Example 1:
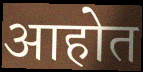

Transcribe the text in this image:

आहोत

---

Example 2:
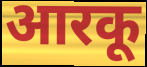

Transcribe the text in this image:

आरकू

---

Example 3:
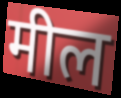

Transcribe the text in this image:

मील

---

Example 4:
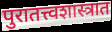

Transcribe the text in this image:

पुरातत्त्वशास्त्रात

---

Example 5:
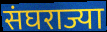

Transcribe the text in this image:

संघराज्या